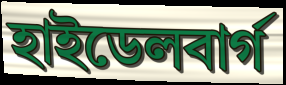
হাইডেলবার্গ